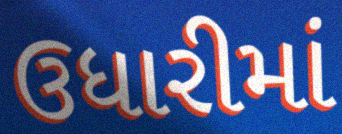
ઉધારીમાં